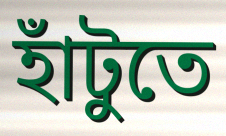
হাঁটুতে